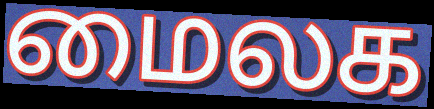
மைலக